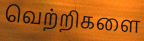
வெற்றிகளை